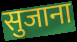
सुजाना